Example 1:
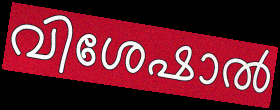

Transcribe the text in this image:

വിശേഷാൽ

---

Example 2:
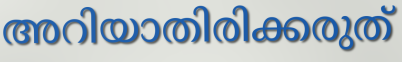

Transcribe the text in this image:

അറിയാതിരിക്കരുത്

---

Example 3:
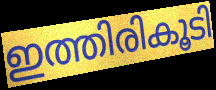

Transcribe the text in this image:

ഇത്തിരികൂടി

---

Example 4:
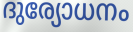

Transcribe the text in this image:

ദുര്യോധനം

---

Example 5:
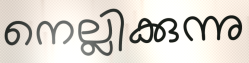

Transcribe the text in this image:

നെല്ലിക്കുന്നു